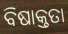
ବିଷାକ୍ତତା